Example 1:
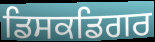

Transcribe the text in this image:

ਡਿਸਕਡਿਗਰ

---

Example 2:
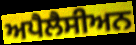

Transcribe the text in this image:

ਅਪੈਲੈਸੀਅਨ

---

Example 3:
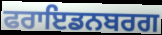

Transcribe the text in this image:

ਫਰਾਇਡਨਬਰਗ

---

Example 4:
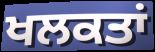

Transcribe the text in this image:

ਖਲਕਤਾਂ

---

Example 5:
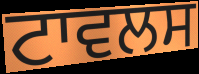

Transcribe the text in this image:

ਟਾਵਲਸ